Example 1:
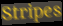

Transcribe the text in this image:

Stripes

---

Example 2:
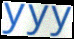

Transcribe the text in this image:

yyy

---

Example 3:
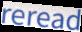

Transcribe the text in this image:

reread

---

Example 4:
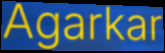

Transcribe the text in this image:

Agarkar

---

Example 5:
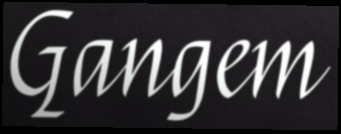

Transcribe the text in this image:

Gangem